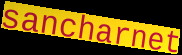
sancharnet